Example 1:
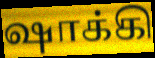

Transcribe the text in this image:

ஷாக்கி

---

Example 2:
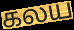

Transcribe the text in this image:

கலய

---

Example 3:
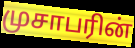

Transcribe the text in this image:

முசாபரின்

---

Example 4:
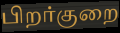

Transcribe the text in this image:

பிறர்குறை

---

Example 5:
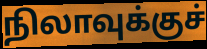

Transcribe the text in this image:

நிலாவுக்குச்